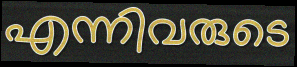
എന്നിവരുടെ